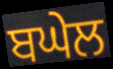
ਬਘੇਲ